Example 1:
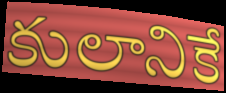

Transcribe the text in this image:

కులానికే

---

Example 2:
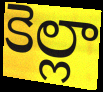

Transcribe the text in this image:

కెల్లా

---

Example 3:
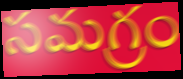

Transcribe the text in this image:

సమగ్రం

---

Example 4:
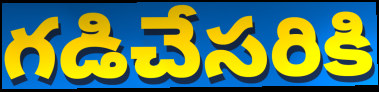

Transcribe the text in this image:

గడిచేసరికి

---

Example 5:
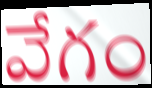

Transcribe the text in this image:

వేగం